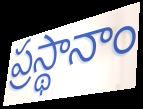
ప్రస్థానాం